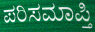
ಪರಿಸಮಾಪ್ತಿ